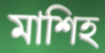
মাশিহ